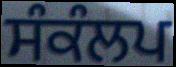
ਸੰਕੰਲਪ